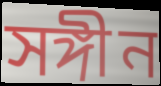
সঙ্গীন